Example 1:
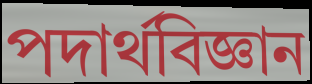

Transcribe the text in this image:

পদাৰ্থবিজ্ঞান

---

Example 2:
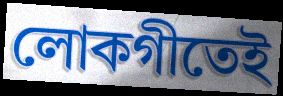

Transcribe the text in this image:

লোকগীতেই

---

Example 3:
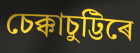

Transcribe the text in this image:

চেক্কাচুট্টিৰে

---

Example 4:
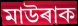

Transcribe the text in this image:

মাউৰাক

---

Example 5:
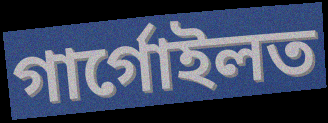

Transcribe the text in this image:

গাৰ্গোইলত